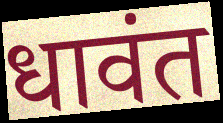
धावंत